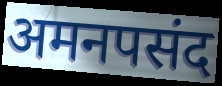
अमनपसंद